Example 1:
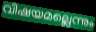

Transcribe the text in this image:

വിഷയമല്ലെന്നും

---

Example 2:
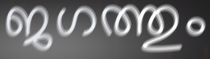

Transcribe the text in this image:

ജഗത്തും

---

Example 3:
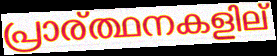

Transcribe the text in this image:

പ്രാര്ത്ഥനകളില്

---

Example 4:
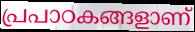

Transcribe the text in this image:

പ്രപാഠകങ്ങളാണ്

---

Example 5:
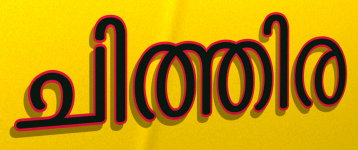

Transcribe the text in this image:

ചിത്തിര